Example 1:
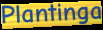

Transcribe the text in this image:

Plantinga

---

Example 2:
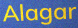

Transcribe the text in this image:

Alagar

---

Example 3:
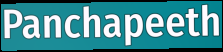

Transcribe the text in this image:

Panchapeeth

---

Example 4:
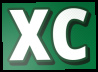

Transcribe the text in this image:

XC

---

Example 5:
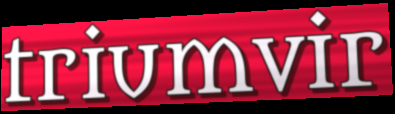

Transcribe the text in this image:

triumvir